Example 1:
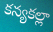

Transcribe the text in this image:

కన్యకల్లా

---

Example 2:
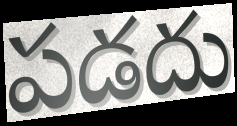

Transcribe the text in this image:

పడదు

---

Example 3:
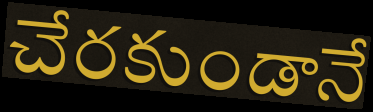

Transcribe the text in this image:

చేరకుండానే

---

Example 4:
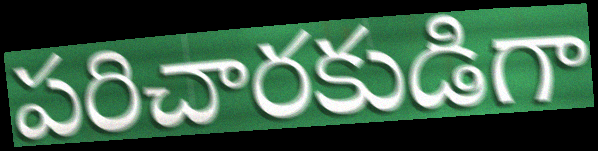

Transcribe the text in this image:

పరిచారకుడిగా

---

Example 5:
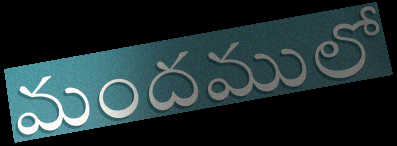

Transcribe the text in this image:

మందములో